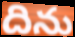
దిను